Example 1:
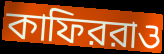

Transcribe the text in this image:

কাফিররাও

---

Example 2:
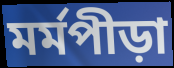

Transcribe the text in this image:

মর্মপীড়া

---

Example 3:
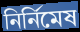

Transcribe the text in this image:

নির্নিমেষ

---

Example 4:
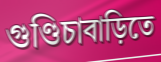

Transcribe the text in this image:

গুণ্ডিচাবাড়িতে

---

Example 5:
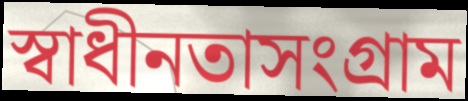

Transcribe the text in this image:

স্বাধীনতাসংগ্রাম